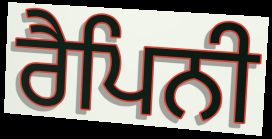
ਰੈਪਿਨੀ